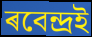
ৰবেন্দ্ৰই